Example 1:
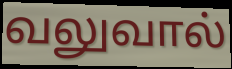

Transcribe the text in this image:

வலுவால்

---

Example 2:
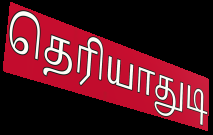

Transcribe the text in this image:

தெரியாதுடி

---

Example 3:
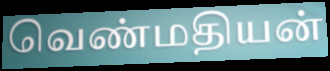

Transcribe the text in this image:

வெண்மதியன்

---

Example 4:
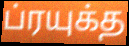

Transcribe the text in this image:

ப்ரயுக்த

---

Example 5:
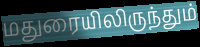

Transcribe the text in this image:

மதுரையிலிருந்தும்